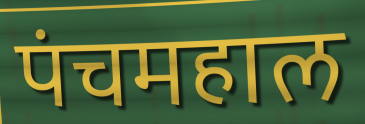
पंचमहाल